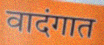
वादंगात